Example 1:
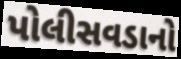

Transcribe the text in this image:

પોલીસવડાનો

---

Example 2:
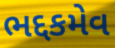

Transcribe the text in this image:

ભદ્દકમેવ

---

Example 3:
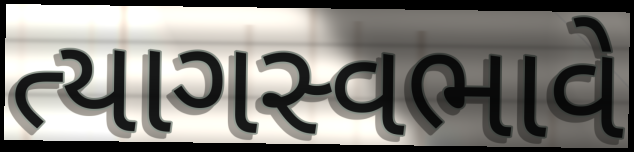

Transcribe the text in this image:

ત્યાગસ્વભાવે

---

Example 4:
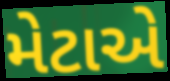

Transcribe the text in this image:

મેટાએ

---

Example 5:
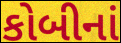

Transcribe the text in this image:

કોબીનાં